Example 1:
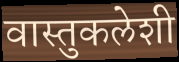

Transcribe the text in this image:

वास्तुकलेशी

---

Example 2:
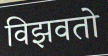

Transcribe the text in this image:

विझवतो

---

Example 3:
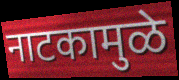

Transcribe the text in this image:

नाटकामुळे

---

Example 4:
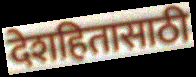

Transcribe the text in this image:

देशहितासाठी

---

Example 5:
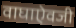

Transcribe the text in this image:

वाघाऐवजी